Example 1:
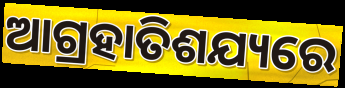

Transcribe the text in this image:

ଆଗ୍ରହାତିଶଯ୍ୟରେ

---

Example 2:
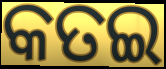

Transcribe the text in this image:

କତଇ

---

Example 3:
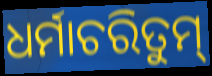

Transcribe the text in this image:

ଧର୍ମାଚରିତୁମ୍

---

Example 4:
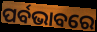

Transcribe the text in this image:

ପର୍ବଭାବରେ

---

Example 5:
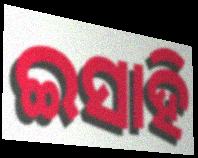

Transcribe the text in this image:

ଇସାହି